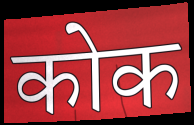
कोक